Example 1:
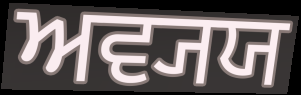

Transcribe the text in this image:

ਅਵ੍ਯਯ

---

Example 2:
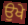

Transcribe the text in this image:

ਉਖੇ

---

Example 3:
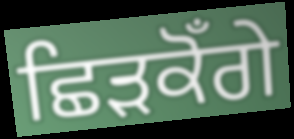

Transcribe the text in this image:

ਛਿੜਕੋਁਗੇ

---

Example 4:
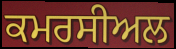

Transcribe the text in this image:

ਕਮਰਸੀਅਲ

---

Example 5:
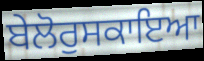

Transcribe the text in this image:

ਬੇਲੋਰੁਸਕਾਇਆ